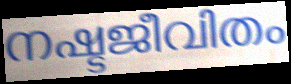
നഷ്ടജീവിതം